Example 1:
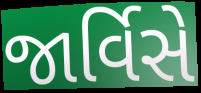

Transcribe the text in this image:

જાર્વિસે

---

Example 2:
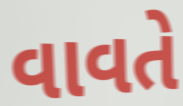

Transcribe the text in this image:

વાવતે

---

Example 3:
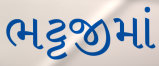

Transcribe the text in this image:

ભટ્ટજીમાં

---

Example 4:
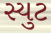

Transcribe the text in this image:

સ્યુટ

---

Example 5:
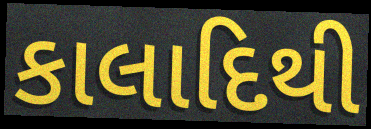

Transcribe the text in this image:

કાલાદિથી